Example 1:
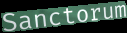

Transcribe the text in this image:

Sanctorum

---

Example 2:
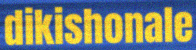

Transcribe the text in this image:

dikishonale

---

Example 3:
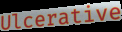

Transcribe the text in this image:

Ulcerative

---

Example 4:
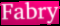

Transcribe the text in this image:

Fabry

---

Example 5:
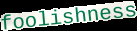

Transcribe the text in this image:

foolishness